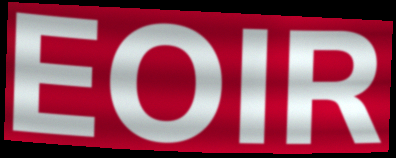
EOIR